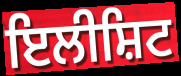
ਇਲੀਸ਼ਿਟ